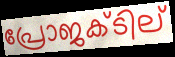
പ്രോജക്ടില്